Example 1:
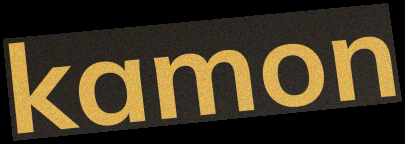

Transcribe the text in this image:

kamon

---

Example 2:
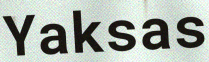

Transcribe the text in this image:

Yaksas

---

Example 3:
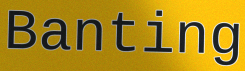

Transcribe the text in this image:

Banting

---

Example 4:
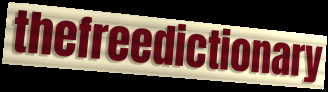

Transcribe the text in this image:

thefreedictionary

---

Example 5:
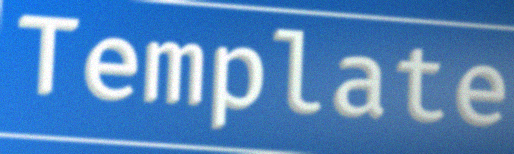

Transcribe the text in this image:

Template